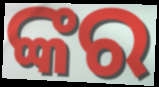
ଙ୍କର